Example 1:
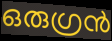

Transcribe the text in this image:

ഒരുഗ്രൻ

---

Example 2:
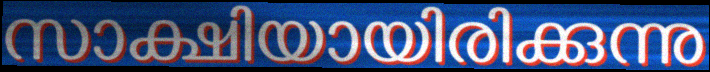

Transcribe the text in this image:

സാക്ഷിയായിരിക്കുന്നു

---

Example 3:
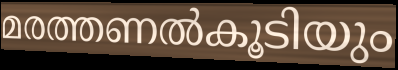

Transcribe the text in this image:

മരത്തണൽകൂടിയും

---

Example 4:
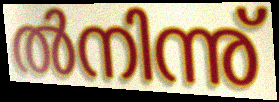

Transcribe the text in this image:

ൽനിന്നു്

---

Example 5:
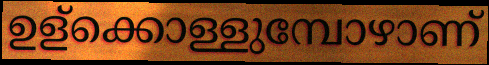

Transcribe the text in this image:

ഉള്ക്കൊള്ളുമ്പോഴാണ്